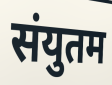
संयुतम